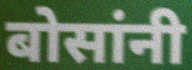
बोसांनी